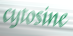
cytosine